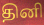
தினி